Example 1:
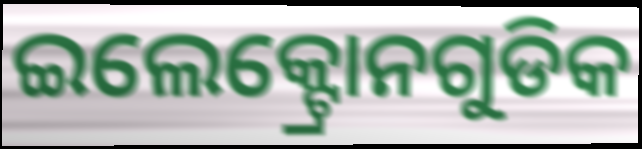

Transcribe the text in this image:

ଇଲେକ୍ଟ୍ରୋନଗୁଡିକ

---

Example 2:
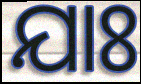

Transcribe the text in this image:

ଯାଃ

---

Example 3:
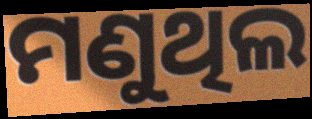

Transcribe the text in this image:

ମଣୁଥିଲ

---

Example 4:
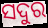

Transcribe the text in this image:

ସଦୁର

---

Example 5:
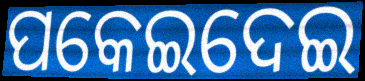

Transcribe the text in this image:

ପକେଇଦେଇ